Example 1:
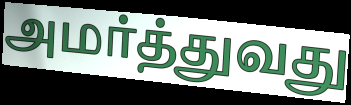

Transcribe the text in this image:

அமர்த்துவது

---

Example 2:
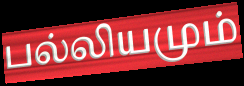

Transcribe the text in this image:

பல்லியமும்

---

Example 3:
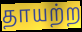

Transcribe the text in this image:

தாயற்ற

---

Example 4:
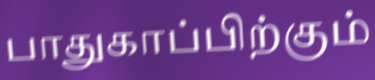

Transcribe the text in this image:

பாதுகாப்பிற்கும்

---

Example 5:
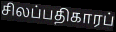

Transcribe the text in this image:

சிலப்பதிகாரப்